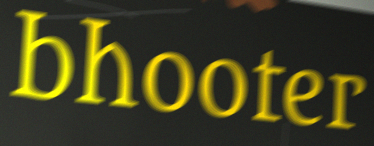
bhooter